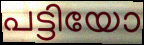
പട്ടിയോ